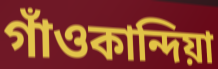
গাঁওকান্দিয়া